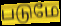
படுமே